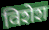
विशेश